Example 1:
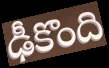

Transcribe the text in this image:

ఢీకొంది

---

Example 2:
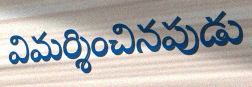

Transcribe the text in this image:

విమర్శించినపుడు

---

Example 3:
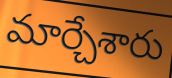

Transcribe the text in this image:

మార్చేశారు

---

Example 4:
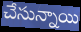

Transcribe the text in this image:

చేసున్నాయి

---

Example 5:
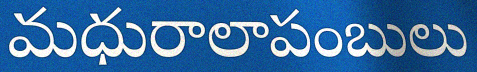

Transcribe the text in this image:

మధురాలాపంబులు